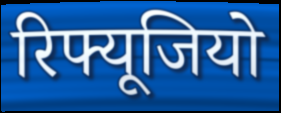
रिफ्यूजियो